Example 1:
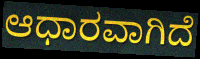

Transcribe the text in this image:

ಆಧಾರವಾಗಿದೆ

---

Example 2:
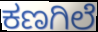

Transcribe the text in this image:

ಕಣಗಿಲೆ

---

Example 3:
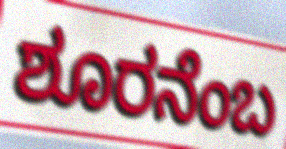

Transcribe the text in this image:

ಶೂರನೆಂಬ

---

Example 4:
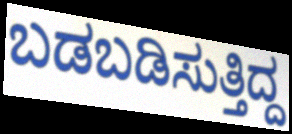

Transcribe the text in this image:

ಬಡಬಡಿಸುತ್ತಿದ್ದ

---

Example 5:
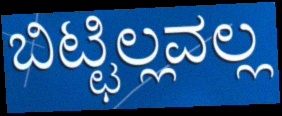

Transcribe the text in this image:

ಬಿಟ್ಟಿಲ್ಲವಲ್ಲ